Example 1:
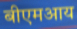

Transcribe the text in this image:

बीएमआय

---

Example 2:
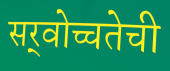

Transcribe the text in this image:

सर्वोच्चतेची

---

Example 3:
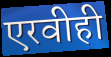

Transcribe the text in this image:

एरवीही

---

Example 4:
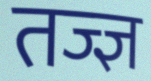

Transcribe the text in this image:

तज्‍ज्ञ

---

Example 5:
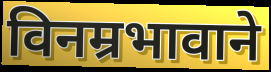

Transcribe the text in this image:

विनम्रभावाने